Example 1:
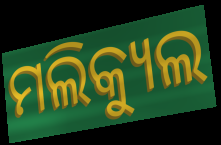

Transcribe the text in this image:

ମଲିକ୍ୟୁଲ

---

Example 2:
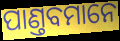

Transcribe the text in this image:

ପାଣ୍ତବମାନେ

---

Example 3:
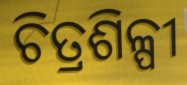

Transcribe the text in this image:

ଚିତ୍ରଶିଳ୍ପୀ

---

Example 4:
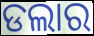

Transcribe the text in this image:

ଡଲାର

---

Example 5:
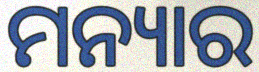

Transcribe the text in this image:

ମନ୍ୟାର